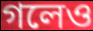
গলেও